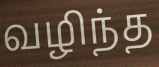
வழிந்த